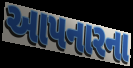
આપનારના